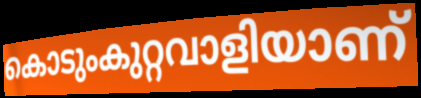
കൊടുംകുറ്റവാളിയാണ്